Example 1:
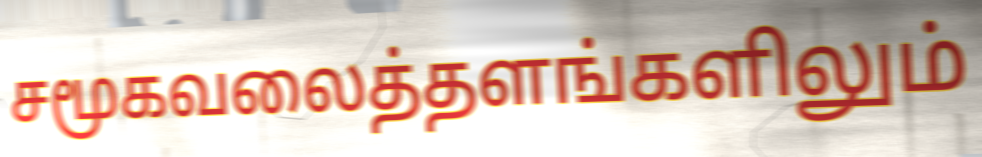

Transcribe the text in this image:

சமூகவலைத்தளங்களிலும்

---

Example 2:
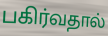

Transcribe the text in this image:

பகிர்வதால்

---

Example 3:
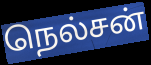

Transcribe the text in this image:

நெல்சன்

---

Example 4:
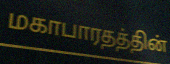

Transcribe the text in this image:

மகாபாரதத்தின்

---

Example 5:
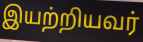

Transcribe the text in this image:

இயற்றியவர்